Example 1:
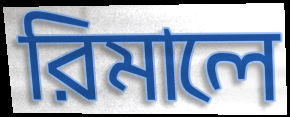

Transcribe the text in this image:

রিমালে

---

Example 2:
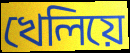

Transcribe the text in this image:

খেলিয়ে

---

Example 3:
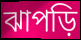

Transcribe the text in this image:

ঝাপড়ি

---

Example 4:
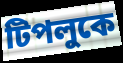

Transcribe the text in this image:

টিপলুকে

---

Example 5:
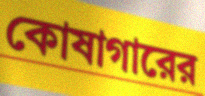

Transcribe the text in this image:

কোষাগারের